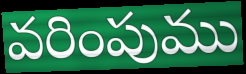
వరింపుము